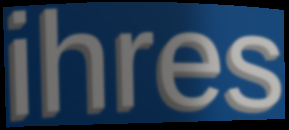
ihres